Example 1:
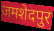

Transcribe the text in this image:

जमशेदपुर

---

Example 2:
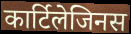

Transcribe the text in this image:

कार्टिलेजिनस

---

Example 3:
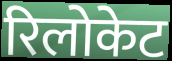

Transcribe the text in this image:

रिलोकेट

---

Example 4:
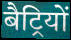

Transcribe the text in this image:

बैट्रियों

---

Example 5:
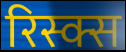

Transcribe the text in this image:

रिस्क्स